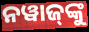
ନୱାଜ୍‍ଙ୍କୁ